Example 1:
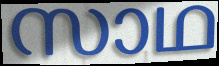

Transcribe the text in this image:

സാഥ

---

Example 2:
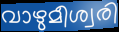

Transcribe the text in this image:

വാഴുമീശ്വരി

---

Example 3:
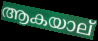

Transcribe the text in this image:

ആകയാല്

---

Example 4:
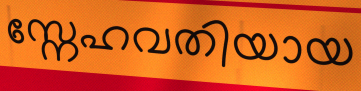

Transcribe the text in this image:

സ്നേഹവതിയായ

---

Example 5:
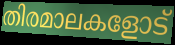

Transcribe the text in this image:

തിരമാലകളോട്